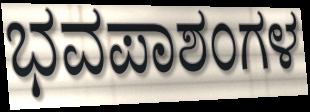
ಭವಪಾಶಂಗಳ